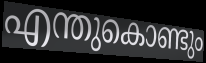
എന്തുകൊണ്ടും